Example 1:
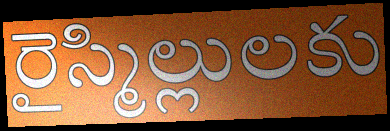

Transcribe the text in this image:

రైస్మిల్లులకు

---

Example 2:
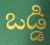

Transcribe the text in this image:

ఒడ్డి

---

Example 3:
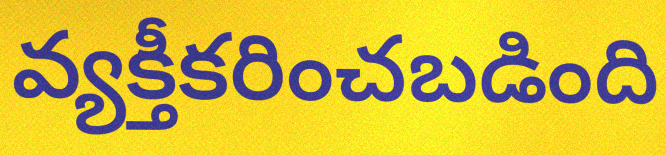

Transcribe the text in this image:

వ్యక్తీకరించబడింది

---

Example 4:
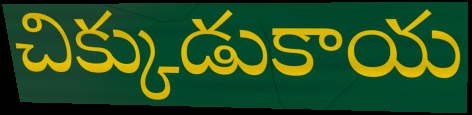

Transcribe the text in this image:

చిక్కుడుకాయ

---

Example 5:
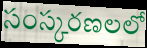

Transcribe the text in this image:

సంస్కరణలలో